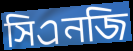
সিএনজি